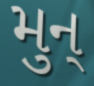
મુન્